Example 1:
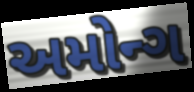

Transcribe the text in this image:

અમોન્ગ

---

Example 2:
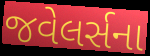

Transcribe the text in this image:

જવેલર્સના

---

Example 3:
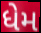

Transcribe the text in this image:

ધેમ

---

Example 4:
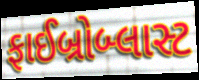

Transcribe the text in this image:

ફાઈબ્રોબ્લાસ્ટ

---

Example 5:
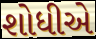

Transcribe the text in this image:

શોધીએ